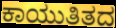
ಕಾಯುತಿತದ